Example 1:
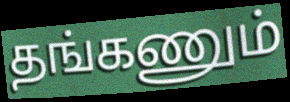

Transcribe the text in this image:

தங்கணும்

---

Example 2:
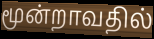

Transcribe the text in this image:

மூன்றாவதில்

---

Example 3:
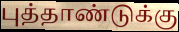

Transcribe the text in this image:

புத்தாண்டுக்கு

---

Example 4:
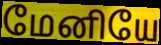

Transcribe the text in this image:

மேனியே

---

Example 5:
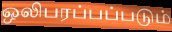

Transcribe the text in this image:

ஒலிபரப்பப்படும்